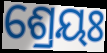
ଶ୍ରେୟଃ